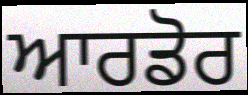
ਆਰਡੋਰ